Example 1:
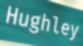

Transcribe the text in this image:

Hughley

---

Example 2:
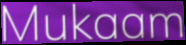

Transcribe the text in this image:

Mukaam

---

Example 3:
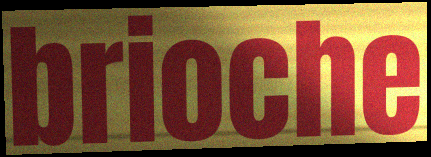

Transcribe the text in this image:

brioche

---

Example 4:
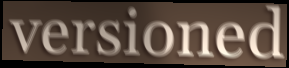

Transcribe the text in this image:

versioned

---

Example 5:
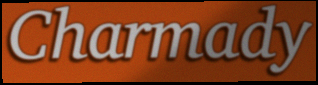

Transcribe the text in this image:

Charmady